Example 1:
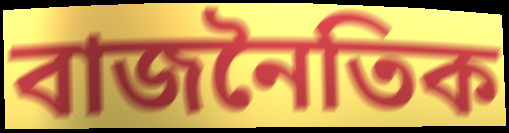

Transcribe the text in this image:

বাজনৈতিক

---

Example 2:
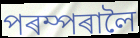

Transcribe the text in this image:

পৰম্পৰালৈ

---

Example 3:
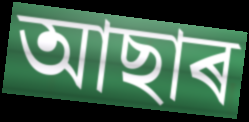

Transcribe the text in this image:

আছাৰ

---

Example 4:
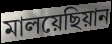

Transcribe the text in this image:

মালয়েছিয়ান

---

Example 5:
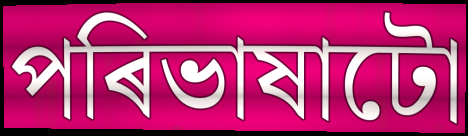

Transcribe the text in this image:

পৰিভাষাটো